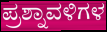
ಪ್ರಶ್ನಾವಳಿಗಳ